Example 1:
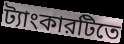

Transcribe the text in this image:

ট্যাংকারটিতে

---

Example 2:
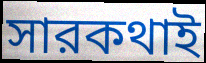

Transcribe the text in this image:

সারকথাই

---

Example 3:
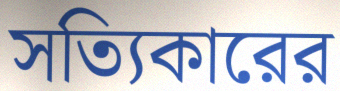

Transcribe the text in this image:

সত্যিকারের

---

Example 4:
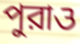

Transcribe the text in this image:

পুরাও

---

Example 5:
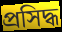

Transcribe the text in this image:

প্রসিদ্ধ